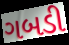
ગબડી